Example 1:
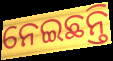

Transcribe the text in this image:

ନେଇଛନ୍ତି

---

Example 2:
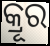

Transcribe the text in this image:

କ୍ରୂର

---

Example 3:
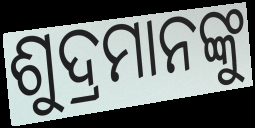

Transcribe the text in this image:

ଶୁଦ୍ରମାନଙ୍କୁ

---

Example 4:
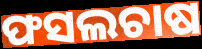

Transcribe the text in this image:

ଫସଲଚାଷ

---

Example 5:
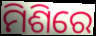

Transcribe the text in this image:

ମିଶିରେ